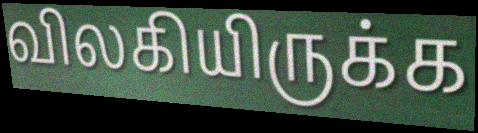
விலகியிருக்க